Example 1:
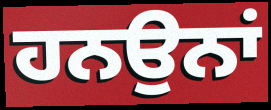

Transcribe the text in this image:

ਹਨਉਨਾਂ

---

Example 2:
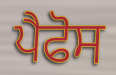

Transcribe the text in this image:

ਪੈਫੋਸ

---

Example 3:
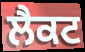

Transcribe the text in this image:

ਲੈਕਟ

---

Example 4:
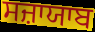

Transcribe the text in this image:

ਸਜ਼ਾਯਾਬ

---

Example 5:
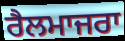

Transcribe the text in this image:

ਰੈਲਮਾਜਰਾ